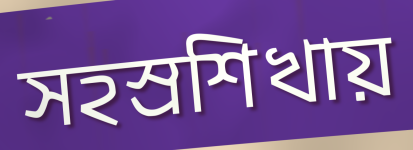
সহস্রশিখায়